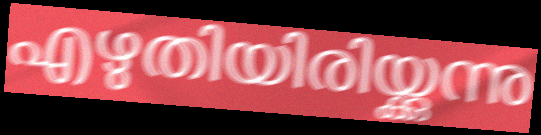
എഴുതിയിരിയ്ക്കുന്നു